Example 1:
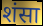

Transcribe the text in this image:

शंसा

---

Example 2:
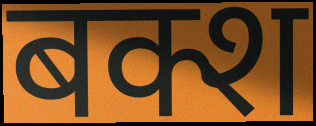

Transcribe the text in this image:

बक्श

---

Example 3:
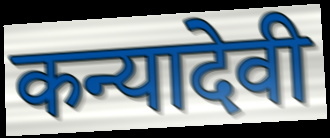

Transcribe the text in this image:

कन्यादेवी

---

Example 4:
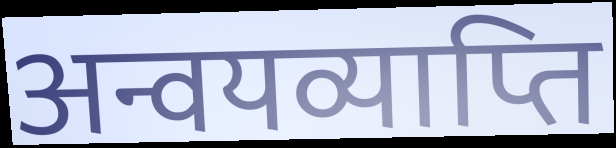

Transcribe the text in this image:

अन्वयव्याप्ति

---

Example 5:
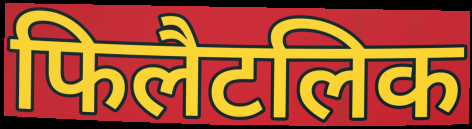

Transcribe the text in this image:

फिलैटलिक